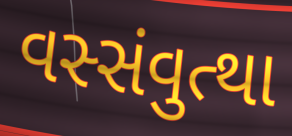
વસ્સંવુત્થા